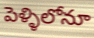
పెళ్ళిలోనూ